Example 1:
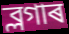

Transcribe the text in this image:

ব্লগাৰ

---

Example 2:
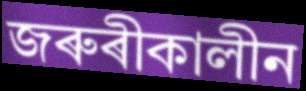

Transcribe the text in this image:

জৰুৰীকালীন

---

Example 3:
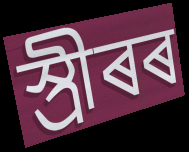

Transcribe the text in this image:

স্ত্ৰীৰৰ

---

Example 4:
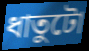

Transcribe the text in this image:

ধাতুটো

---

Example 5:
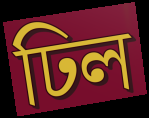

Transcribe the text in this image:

ঢিল